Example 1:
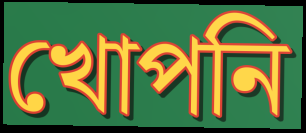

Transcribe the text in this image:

খোপনি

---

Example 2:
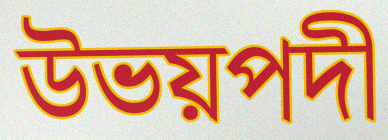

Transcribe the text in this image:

উভয়পদী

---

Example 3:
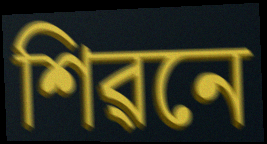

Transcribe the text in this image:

শিৱনে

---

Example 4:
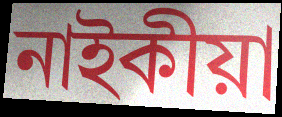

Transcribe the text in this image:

নাইকীয়া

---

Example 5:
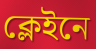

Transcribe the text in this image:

ক্লেইনে